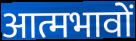
आत्मभावों